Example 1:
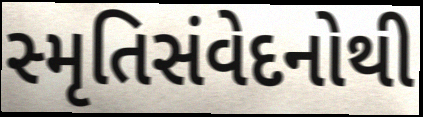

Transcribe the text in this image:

સ્મૃતિસંવેદનોથી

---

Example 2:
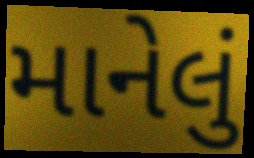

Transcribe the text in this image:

માનેલું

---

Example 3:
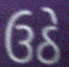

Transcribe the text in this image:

ઉઠે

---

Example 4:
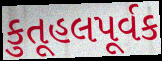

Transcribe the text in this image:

કુતૂહલપૂર્વક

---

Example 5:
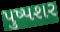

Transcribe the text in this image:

પુષ્પશર